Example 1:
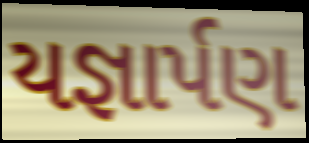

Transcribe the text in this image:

યજ્ઞાર્પણ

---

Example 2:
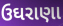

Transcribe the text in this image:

ઉઘરાણા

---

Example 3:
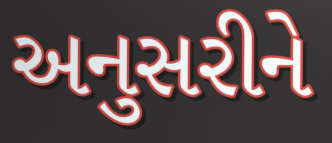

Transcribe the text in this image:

અનુસરીને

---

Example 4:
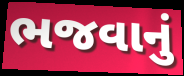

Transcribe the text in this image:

ભજવાનું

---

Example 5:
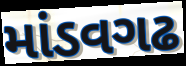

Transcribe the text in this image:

માંડવગઢ